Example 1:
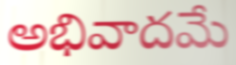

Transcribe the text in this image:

అభివాదమే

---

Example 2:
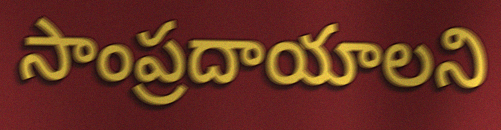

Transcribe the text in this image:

సాంప్రదాయాలని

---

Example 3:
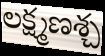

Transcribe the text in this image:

లక్ష్మణశ్చ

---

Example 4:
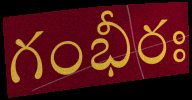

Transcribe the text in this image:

గంభీరః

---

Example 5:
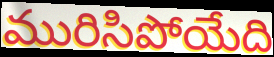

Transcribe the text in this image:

మురిసిపోయేది